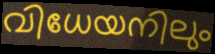
വിധേയനിലും